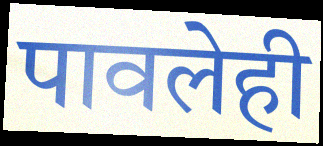
पावलेही